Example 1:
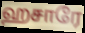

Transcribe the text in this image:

ஹசாரே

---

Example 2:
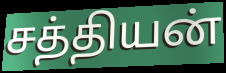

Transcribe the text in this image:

சத்தியன்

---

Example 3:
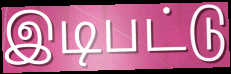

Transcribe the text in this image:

இடிபட்டு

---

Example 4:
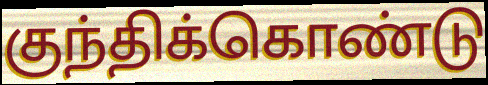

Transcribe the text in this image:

குந்திக்கொண்டு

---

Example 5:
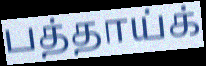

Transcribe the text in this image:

பத்தாய்க்